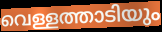
വെള്ളത്താടിയും